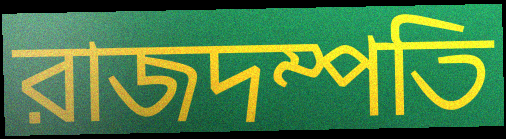
রাজদম্পতি